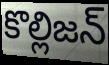
కొల్లిజన్